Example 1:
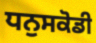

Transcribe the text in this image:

ਧਨੁਸਕੋਡੀ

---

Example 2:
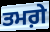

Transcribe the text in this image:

ਤਮਗ਼ੇ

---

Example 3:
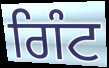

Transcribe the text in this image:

ਗਿੰਟ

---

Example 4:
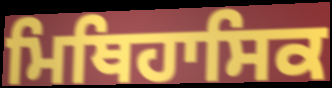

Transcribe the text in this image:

ਮਿਥਿਹਾਸਿਕ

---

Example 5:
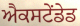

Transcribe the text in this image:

ਐਕਸਟੇਂਡੇਡ